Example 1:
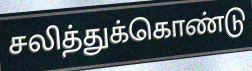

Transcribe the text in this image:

சலித்துக்கொண்டு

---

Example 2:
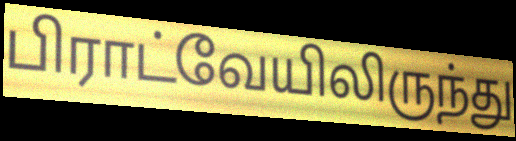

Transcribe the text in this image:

பிராட்வேயிலிருந்து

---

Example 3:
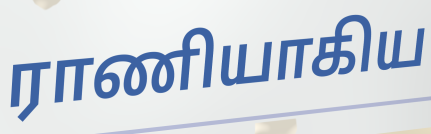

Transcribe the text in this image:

ராணியாகிய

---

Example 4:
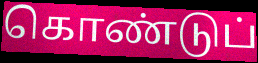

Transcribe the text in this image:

கொண்டுப்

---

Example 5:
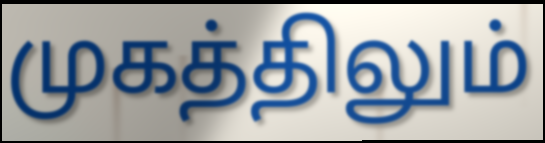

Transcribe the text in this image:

முகத்திலும்